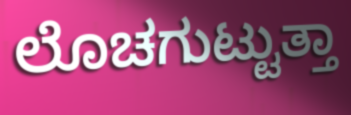
ಲೊಚಗುಟ್ಟುತ್ತಾ